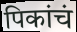
पिकांचं